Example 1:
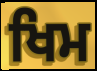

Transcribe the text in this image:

ਖਿਮ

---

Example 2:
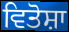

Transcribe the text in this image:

ਵਿਤੋਸ਼ਾ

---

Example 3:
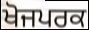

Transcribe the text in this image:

ਖੋਜਪਰਕ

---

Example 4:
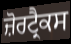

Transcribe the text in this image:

ਜ਼ੋਰਟ੍ਰੈਕਸ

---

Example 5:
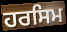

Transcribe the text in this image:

ਹਰਸਿਮ